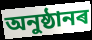
অনুষ্ঠানৰ